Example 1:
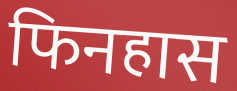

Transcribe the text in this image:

फिनहास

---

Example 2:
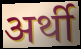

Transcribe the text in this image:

अर्थी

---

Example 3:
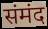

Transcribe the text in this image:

संमंद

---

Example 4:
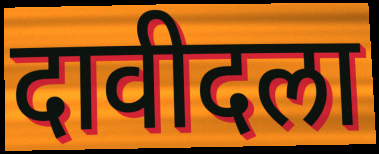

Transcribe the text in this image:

दावीदला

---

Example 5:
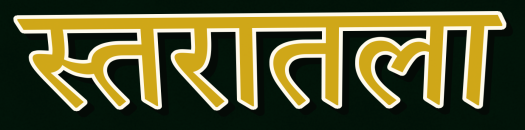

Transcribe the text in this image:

स्तरातला